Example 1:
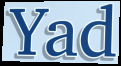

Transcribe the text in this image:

Yad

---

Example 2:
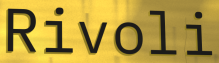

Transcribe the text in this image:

Rivoli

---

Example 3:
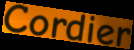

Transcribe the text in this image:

Cordier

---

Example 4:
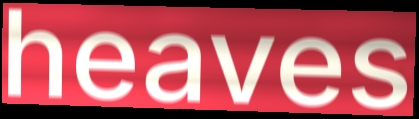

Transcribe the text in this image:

heaves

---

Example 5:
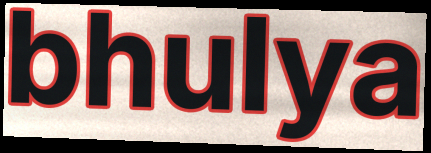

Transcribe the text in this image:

bhulya